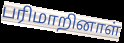
பரிமாறினாள்